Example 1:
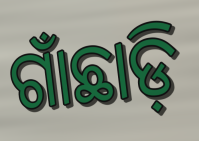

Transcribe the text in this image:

ଗାଁଛାଡ଼ି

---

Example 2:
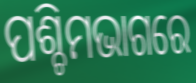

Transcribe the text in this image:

ପଶ୍ଚିମଭାଗରେ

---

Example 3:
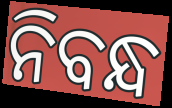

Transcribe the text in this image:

ନିବନ୍ଧ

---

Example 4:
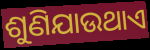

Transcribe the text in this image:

ଶୁଣିଯାଉଥାଏ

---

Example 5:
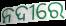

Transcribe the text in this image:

ନଦୀରେ